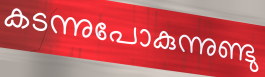
കടന്നുപോകുന്നുണ്ടു